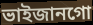
ভাইজানগো